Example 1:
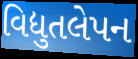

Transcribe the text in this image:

વિદ્યુતલેપન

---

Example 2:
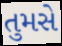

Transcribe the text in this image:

તુમસે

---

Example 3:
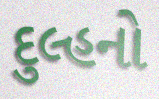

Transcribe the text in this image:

દુલ્હનો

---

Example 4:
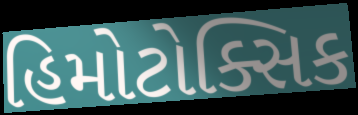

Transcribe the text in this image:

હિમોટોક્સિક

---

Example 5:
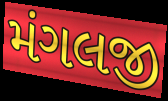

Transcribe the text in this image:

મંગલજી